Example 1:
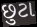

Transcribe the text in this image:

છુટા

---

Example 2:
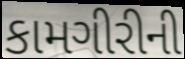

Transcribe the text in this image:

કામગીરીની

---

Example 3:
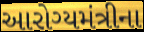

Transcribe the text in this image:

આરોગ્યમંત્રીના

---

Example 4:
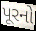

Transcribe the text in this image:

પૂરનો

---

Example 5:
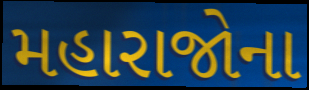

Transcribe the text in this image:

મહારાજોના